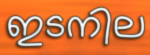
ഇടനില